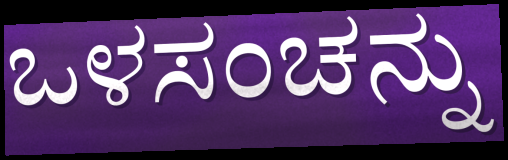
ಒಳಸಂಚನ್ನು